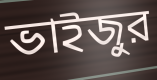
ভাইজুর